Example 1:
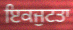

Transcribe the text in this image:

ਇਕਜੁਟਤਾ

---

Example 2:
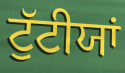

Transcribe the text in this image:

ਟੁੱਟੀਯਾਂ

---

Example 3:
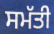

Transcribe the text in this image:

ਸਮੱਤੀ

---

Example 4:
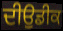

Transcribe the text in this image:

ਦੀਉਡੀਕ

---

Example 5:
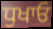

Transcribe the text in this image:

ਧੁਖਾਓ